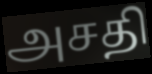
அசதி